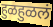
हुळहुळलं